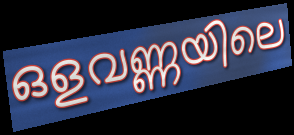
ഒളവണ്ണയിലെ